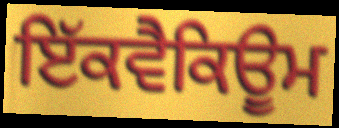
ਇੱਕਵੈਕਿਊਮ